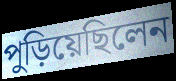
পুড়িয়েছিলেন